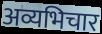
अव्यभिचार